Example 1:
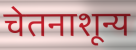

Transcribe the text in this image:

चेतनाशून्य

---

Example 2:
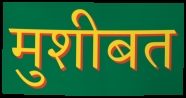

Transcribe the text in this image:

मुशीबत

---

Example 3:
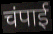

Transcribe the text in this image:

चंपाई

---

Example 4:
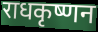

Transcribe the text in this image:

राधकृष्णन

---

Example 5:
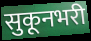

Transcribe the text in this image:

सुकूनभरी